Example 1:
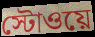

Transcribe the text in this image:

স্টোওয়ে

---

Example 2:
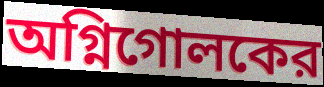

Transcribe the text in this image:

অগ্নিগোলকের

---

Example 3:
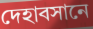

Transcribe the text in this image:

দেহাবসানে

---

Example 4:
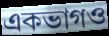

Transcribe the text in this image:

একভাগও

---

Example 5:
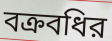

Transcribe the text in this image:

বক্রবধির